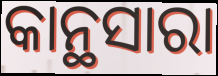
କାନ୍ଥସାରା